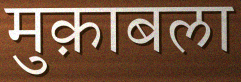
मुक़ाबला